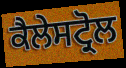
ਕੈਲੇਸਟ੍ਰੋਲ